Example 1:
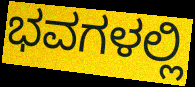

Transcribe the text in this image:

ಭವಗಳಲ್ಲಿ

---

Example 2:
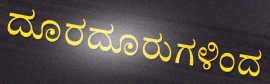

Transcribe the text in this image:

ದೂರದೂರುಗಳಿಂದ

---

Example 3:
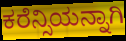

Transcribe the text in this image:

ಕರೆನ್ಸಿಯನ್ನಾಗಿ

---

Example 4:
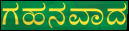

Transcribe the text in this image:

ಗಹನವಾದ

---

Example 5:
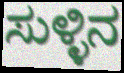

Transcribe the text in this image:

ಸುಳ್ಳಿನ